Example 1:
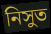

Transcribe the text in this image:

নিসুত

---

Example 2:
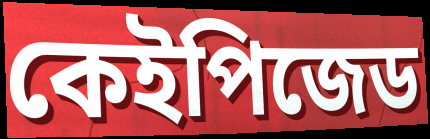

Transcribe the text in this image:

কেইপিজেড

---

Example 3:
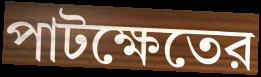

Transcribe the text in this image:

পাটক্ষেতের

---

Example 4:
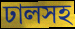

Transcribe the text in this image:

ঢালসহ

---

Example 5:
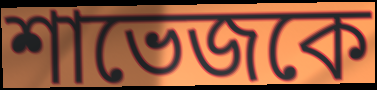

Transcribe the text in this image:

শাভেজকে